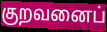
குறவனைப்